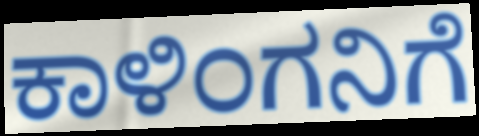
ಕಾಳಿಂಗನಿಗೆ